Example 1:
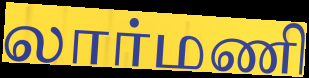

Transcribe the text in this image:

லார்மணி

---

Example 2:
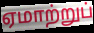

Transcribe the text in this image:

ஏமாற்றுப்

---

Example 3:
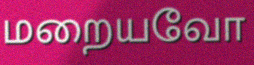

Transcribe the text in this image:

மறையவோ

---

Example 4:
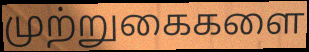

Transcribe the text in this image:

முற்றுகைகளை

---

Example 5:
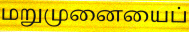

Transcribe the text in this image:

மறுமுனையைப்